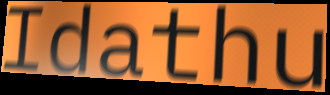
Idathu